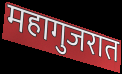
महागुजरात